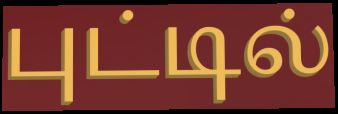
புட்டில்